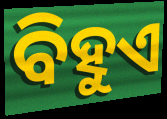
ବିହୁଏ